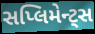
સપ્લિમેન્ટ્સ